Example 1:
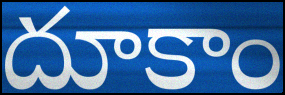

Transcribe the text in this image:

దూకాం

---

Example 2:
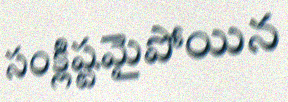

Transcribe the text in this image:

సంక్లిష్టమైపోయిన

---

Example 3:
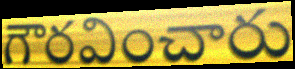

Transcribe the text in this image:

గౌరవించారు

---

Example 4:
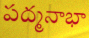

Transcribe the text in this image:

పద్మనాభా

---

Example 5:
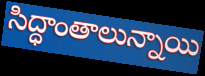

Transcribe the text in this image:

సిద్ధాంతాలున్నాయి